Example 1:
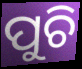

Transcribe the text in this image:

ପୁଚି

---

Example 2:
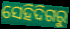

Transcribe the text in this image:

ସେହିଦିଗରୁ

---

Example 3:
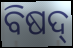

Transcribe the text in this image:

ବିଷଦ୍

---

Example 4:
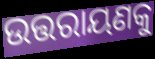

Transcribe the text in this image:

ଉତ୍ତରାୟଣକୁ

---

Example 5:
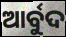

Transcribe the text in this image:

ଆର୍ବୁଦ